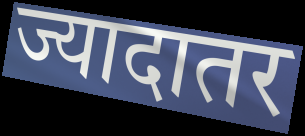
ज्यादातर